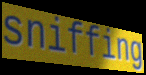
sniffing